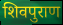
शिवपुराण